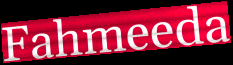
Fahmeeda